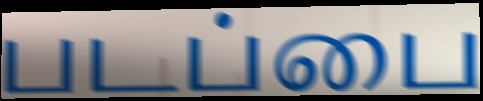
படப்பை